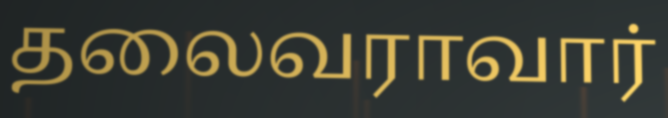
தலைவராவார்